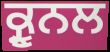
ਕ੍ਰੂਨਲ